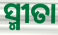
ସ୍ମୀତା